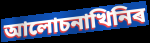
আলোচনাখিনিৰ